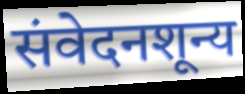
संवेदनशून्य